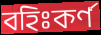
বহিঃকর্ণ